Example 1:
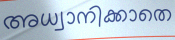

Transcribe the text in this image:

അധ്വാനിക്കാതെ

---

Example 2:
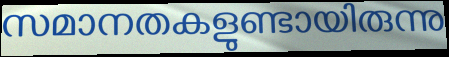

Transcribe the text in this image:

സമാനതകളുണ്ടായിരുന്നു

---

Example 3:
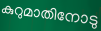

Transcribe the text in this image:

കുറുമാതിനോടു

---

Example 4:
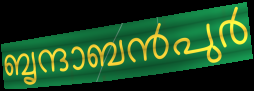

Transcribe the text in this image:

ബൃന്ദാബൻപുർ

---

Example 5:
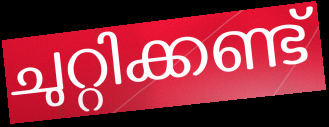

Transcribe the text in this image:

ചുറ്റിക്കണ്ട്